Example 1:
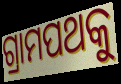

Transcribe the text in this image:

ଗ୍ରାମପଥକୁ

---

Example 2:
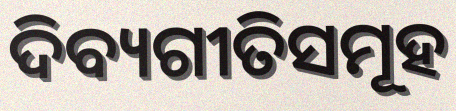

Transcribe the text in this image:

ଦିବ୍ୟଗୀତିସମୂହ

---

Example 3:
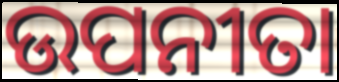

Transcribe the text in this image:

ଉପନୀତା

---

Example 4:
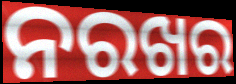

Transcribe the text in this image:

ନରଖର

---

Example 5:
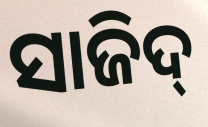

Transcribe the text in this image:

ସାଜିଦ୍